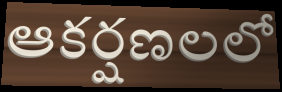
ఆకర్షణలలో